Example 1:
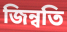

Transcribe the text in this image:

জিন্বতি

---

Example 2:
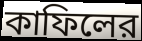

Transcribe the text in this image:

কাফিলের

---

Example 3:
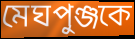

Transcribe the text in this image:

মেঘপুঞ্জকে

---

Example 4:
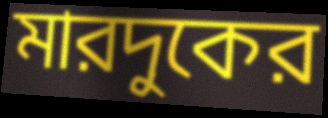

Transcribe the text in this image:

মারদুকের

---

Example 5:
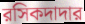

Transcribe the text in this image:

রসিকদাদার